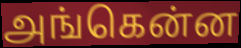
அங்கென்ன